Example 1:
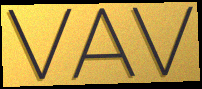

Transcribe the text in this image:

VAV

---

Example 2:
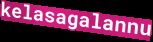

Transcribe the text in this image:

kelasagalannu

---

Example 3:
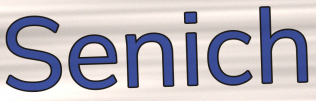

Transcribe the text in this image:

Senich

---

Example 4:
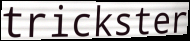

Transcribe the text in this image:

trickster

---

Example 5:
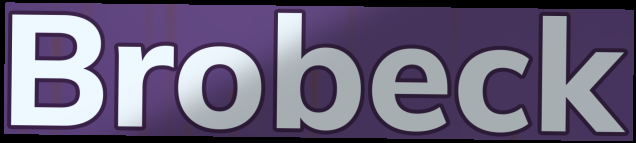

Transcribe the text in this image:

Brobeck